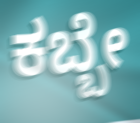
ಕಬ್ಬೇ